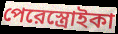
পেরেস্ত্রোইকা